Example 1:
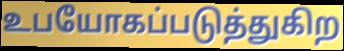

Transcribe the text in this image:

உபயோகப்படுத்துகிற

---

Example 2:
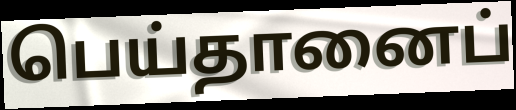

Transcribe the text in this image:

பெய்தானைப்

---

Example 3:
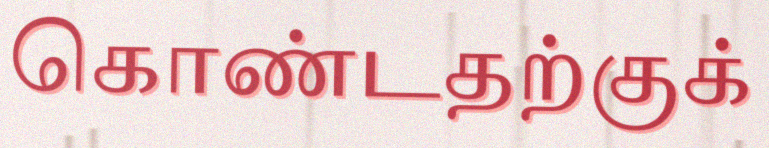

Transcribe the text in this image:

கொண்டதற்குக்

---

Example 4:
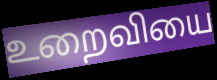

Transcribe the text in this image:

உறைவியை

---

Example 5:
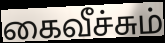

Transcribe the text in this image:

கைவீச்சும்